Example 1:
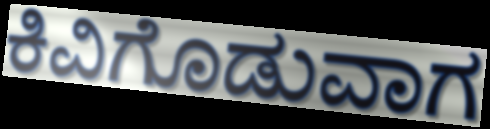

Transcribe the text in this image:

ಕಿವಿಗೊಡುವಾಗ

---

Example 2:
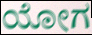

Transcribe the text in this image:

ಯೋಗ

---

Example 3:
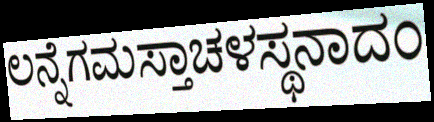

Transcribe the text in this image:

ಲನ್ನೆಗಮಸ್ತಾಚಳಸ್ಥನಾದಂ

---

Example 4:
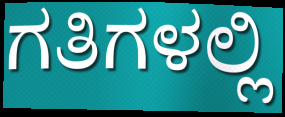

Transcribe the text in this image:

ಗತಿಗಳಲ್ಲಿ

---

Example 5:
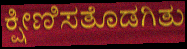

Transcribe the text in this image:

ಕ್ಷೀಣಿಸತೊಡಗಿತು